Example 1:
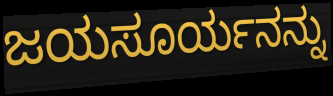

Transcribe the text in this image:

ಜಯಸೂರ್ಯನನ್ನು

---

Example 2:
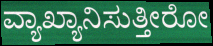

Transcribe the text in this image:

ವ್ಯಾಖ್ಯಾನಿಸುತ್ತೀರೋ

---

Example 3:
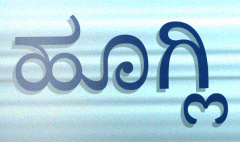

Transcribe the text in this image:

ಹೂಗ್ಲಿ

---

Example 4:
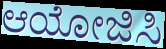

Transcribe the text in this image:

ಆಯೋಜಿಸಿ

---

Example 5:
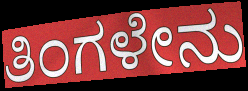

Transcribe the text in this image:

ತಿಂಗಳೇನು